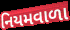
નિયમવાળા